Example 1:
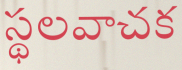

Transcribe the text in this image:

స్థలవాచక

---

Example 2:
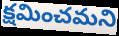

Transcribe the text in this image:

క్షమించమని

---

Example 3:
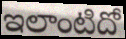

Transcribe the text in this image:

ఇలాంటిదో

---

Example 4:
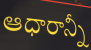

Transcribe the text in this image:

ఆధారాన్నీ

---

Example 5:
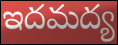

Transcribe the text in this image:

ఇదమద్య